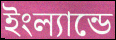
ইংল্যান্ডে